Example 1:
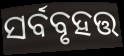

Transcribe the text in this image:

ସର୍ବବୃହତ୍ତ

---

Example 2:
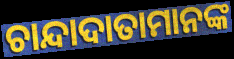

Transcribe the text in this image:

ଚାନ୍ଦାଦାତାମାନଙ୍କ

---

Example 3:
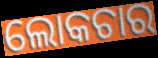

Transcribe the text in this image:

ଲୋକଚାର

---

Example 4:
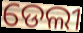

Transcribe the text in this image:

ଡେଲୀ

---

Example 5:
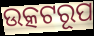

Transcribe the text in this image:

ଉତ୍କଟରୂପ